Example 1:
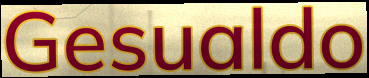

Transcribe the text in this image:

Gesualdo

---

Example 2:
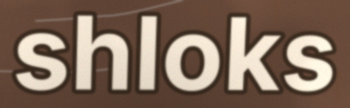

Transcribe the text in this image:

shloks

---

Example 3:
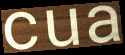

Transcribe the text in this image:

cua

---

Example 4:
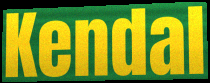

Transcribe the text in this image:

Kendal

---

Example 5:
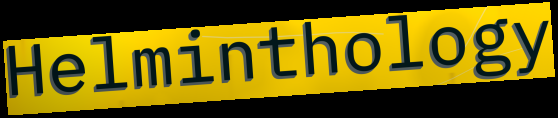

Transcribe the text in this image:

Helminthology